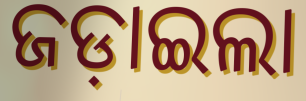
ଜଡ଼ାଇଲା